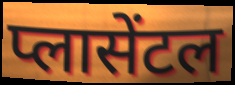
प्लासेंटल